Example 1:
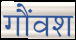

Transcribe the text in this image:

गौंवश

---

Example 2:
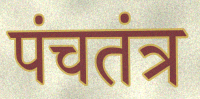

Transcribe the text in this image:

पंचतंत्र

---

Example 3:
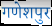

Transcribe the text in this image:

गणेशपुर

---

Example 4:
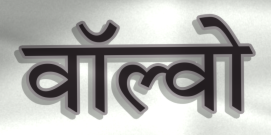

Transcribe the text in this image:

वॉल्‍वो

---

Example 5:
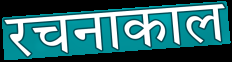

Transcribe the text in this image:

रचनाकाल